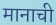
मानाची